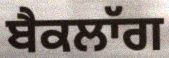
ਬੈਕਲਾੱਗ